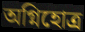
অগ্নিহোত্র